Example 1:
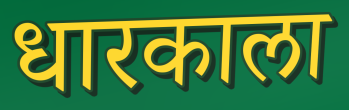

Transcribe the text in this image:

धारकाला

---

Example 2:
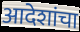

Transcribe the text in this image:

आदेशांचा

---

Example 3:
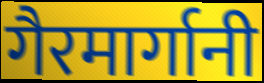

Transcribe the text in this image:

गैरमार्गानी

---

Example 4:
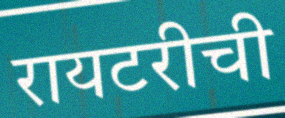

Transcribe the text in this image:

रायटरीची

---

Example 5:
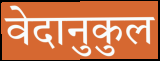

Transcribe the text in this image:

वेदानुकुल